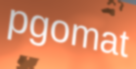
pgomat